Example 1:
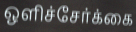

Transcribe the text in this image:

ஒளிச்சேர்க்கை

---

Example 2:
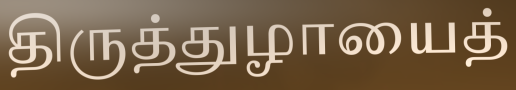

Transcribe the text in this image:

திருத்துழாயைத்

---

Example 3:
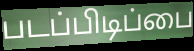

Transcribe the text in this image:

படப்பிடிப்பை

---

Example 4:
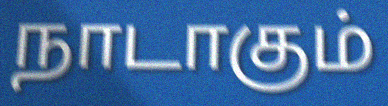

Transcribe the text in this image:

நாடாகும்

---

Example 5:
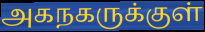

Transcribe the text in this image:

அகநகருக்குள்